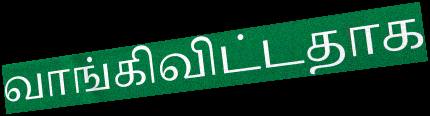
வாங்கிவிட்டதாக